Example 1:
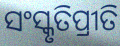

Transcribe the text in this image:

ସଂସ୍କୃତିପ୍ରୀତି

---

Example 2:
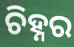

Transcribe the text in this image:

ଚିହ୍ନର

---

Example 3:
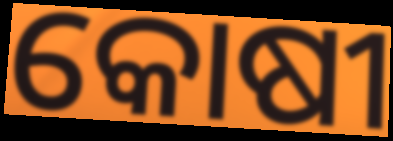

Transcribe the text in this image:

କୋଷୀ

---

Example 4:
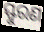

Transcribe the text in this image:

ସ୍ଫୁରଣ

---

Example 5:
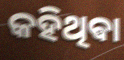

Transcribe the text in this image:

କହିଥିଵା